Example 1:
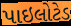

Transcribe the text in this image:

પાઇલોટેડ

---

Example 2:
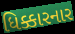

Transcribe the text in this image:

ધિક્કારનાર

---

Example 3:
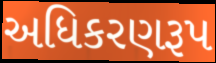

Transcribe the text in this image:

અધિકરણરૂપ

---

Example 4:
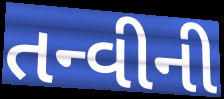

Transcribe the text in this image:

તન્વીની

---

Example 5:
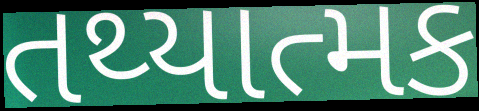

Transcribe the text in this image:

તથ્યાત્મક